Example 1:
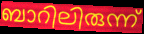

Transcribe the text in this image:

ബാറിലിരുന്ന്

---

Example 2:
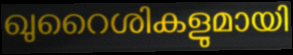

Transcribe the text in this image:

ഖുറൈശികളുമായി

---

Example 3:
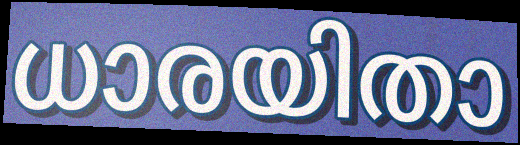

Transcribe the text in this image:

ധാരയിതാ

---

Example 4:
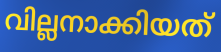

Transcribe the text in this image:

വില്ലനാക്കിയത്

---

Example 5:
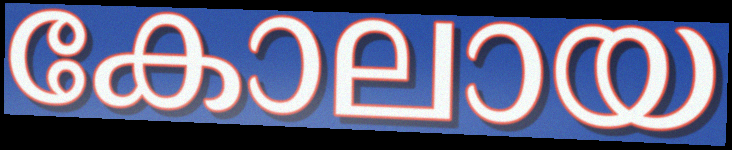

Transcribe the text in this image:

കോലായ